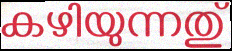
കഴിയുന്നതു്